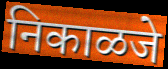
निकाळजे